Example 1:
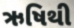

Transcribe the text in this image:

ઋષિથી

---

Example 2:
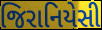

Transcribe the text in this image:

જિરાનિયેસી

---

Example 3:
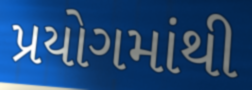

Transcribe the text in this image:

પ્રયોગમાંથી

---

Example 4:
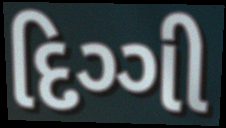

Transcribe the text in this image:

દિગ્ગી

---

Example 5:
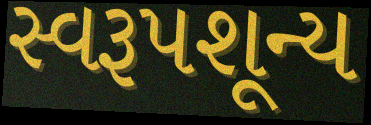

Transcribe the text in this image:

સ્વરૂપશૂન્ય